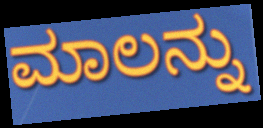
ಮಾಲನ್ನು